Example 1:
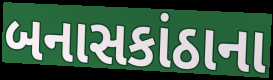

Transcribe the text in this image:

બનાસકાંઠાના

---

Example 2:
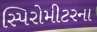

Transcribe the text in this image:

સ્પિરોમીટરના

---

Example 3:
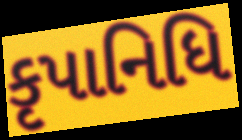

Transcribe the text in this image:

કૃપાનિધિ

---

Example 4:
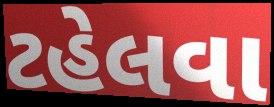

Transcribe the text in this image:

ટહેલવા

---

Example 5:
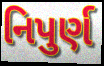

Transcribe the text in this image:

નિપુર્ણ